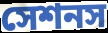
সেশনস